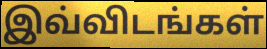
இவ்விடங்கள்